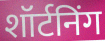
शॉर्टनिंग